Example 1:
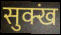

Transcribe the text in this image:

सुक्खं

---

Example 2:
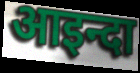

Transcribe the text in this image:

आइन्दा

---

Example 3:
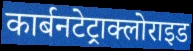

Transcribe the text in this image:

कार्बनटेट्राक्लोराइड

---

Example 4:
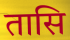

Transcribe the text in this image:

तासि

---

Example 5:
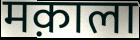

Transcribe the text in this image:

मक़ाला